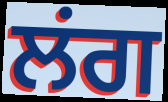
ਲਂਗ